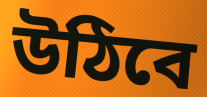
উঠিবে